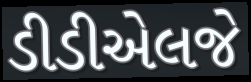
ડીડીએલજે